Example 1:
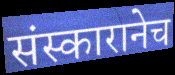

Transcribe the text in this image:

संस्कारानेच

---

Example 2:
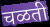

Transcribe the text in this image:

चळती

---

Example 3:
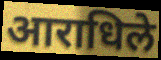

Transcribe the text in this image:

आराधिले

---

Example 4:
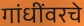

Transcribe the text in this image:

गांधींवरचे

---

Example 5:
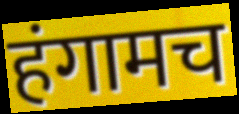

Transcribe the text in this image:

हंगामच